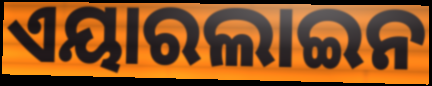
ଏୟାରଲାଇନ